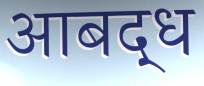
आबद्ध